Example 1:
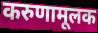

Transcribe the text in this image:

करुणामूलक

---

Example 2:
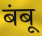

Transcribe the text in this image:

बंबू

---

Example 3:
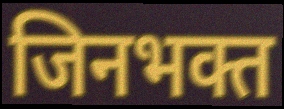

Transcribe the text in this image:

जिनभक्त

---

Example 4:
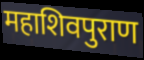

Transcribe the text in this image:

महाशिवपुराण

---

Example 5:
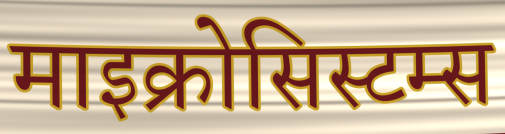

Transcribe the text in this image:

माइक्रोसिस्टम्स